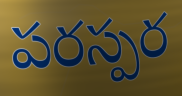
పరస్పర